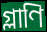
গ্লাণি